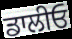
ਡਾਲੀਓ